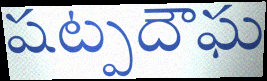
షట్పదౌఘ